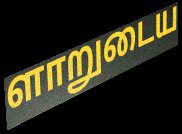
ளாறுடைய